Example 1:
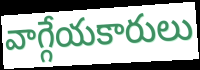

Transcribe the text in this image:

వాగ్గేయకారులు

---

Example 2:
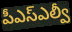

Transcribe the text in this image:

పీఎస్ఎల్వీ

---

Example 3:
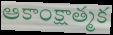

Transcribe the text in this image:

ఆకాంక్షాత్మక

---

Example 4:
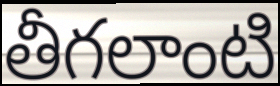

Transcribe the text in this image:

తీగలాంటి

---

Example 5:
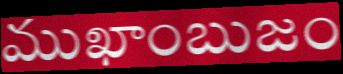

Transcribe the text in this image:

ముఖాంబుజం